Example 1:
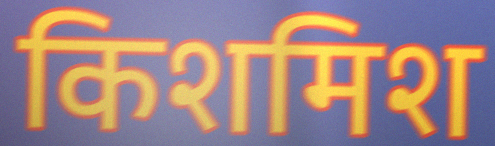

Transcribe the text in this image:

किशमिश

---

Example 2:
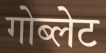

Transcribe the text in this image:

गोब्लेट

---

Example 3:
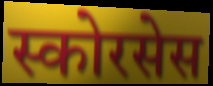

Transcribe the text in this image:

स्कोरसेस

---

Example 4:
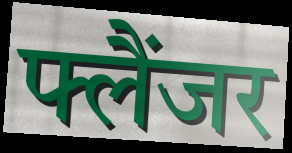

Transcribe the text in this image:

फ्लैंजर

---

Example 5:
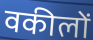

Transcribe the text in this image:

वकीलों